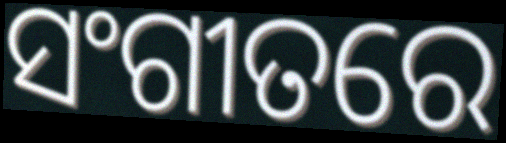
ସଂଗୀତରେ